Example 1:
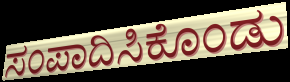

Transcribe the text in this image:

ಸಂಪಾದಿಸಿಕೊಂಡು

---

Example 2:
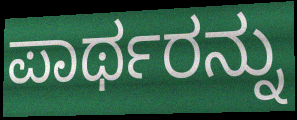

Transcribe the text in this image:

ಪಾರ್ಥರನ್ನು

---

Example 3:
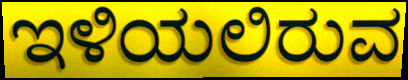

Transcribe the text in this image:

ಇಳಿಯಲಿರುವ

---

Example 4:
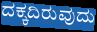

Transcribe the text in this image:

ದಕ್ಕದಿರುವುದು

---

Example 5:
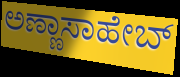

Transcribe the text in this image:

ಅಣ್ಣಾಸಾಹೇಬ್